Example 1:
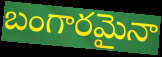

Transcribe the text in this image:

బంగారమైనా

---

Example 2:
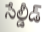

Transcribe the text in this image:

సేల్డీడ్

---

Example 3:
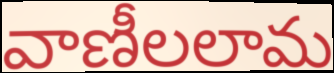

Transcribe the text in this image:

వాణీలలామ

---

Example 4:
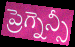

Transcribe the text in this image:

ప్రెగ్నెన్సీ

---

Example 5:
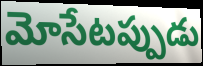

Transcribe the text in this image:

మోసేటప్పుడు